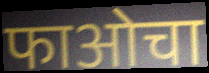
फाओचा